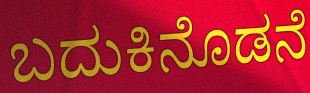
ಬದುಕಿನೊಡನೆ